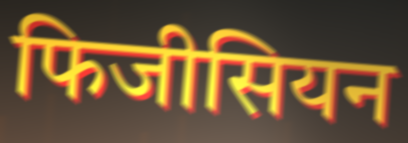
फिजीसियन